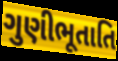
ગુણીભૂતાતિ